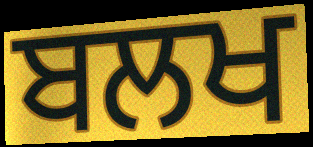
ਬਲਖ